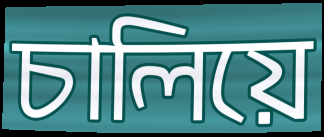
চালিয়ে